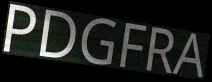
PDGFRA